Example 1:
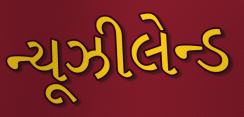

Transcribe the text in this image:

ન્યૂઝીલેન્ડ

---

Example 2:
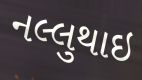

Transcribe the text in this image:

નલ્લુથાઇ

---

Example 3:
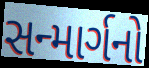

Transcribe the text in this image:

સન્માર્ગનો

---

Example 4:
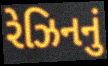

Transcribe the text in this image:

રેઝિનનું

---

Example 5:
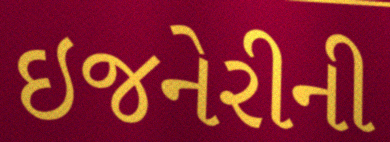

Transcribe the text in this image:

ઇજનેરીની